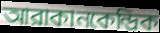
আরাকানকেন্দ্রিক